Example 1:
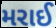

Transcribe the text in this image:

મરાઈ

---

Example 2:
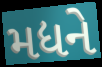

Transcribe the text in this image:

મદ્યને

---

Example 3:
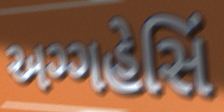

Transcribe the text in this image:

અગ્ગહેસિં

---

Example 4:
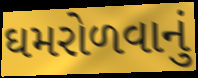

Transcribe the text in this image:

ઘમરોળવાનું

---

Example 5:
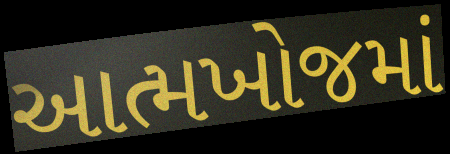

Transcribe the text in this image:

આત્મખોજમાં